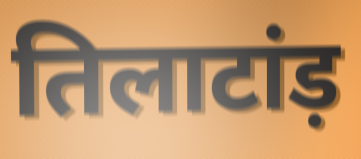
तिलाटांड़